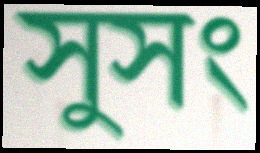
সুসং